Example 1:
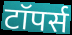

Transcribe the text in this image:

टॉपर्स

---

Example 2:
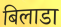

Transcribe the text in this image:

बिलाडा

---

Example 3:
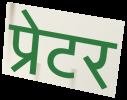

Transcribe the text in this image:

प्रेटर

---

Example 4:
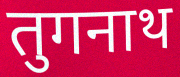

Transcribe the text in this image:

तुगनाथ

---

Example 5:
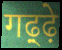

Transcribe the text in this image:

गढ़्ढ़े